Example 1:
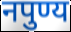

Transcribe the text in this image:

नपुण्य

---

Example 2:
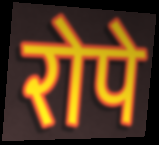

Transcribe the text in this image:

रोपे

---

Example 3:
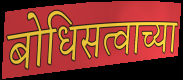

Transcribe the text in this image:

बोधिसत्वाच्या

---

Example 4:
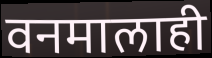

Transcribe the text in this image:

वनमालाही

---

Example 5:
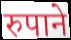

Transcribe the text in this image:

रुपाने